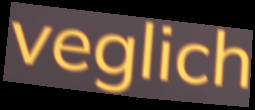
veglich